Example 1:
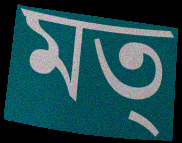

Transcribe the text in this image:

মত্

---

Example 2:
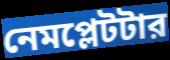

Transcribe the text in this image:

নেমপ্লেটটার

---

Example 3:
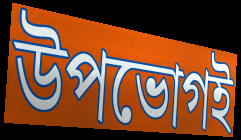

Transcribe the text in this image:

উপভোগই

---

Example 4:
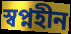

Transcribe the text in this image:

স্বপ্নহীন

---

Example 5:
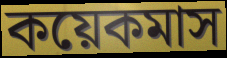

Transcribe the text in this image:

কয়েকমাস